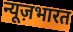
न्यूज़भारत